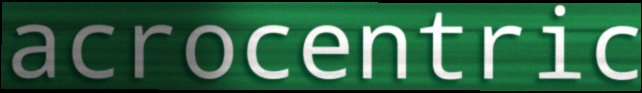
acrocentric